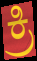
ಕ್ರಿ